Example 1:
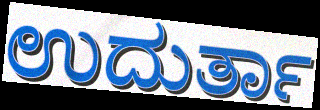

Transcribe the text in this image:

ಉದುರ್ತಾ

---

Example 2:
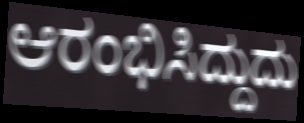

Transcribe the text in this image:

ಆರಂಭಿಸಿದ್ದುದು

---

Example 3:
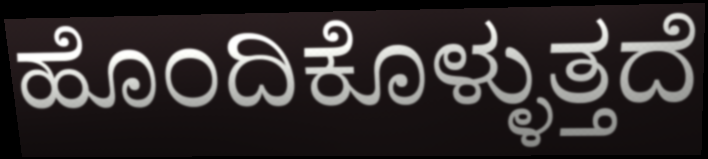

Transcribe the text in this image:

ಹೊಂದಿಕೊಳ್ಳುತ್ತದೆ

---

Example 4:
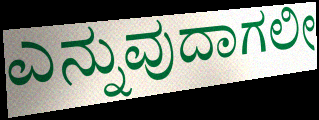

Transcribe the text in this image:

ಎನ್ನುವುದಾಗಲೀ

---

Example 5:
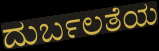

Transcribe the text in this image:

ದುರ್ಬಲತೆಯ